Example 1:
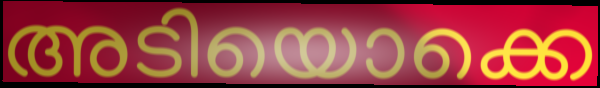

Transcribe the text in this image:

അടിയൊക്കെ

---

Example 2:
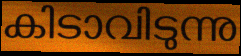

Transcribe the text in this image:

കിടാവിടുന്നു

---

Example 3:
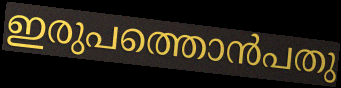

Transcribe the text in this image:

ഇരുപത്തൊൻപതു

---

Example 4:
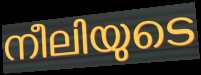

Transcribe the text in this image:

നീലിയുടെ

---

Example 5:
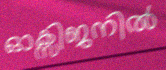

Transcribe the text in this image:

ഓക്സിജനിൽ